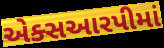
એક્સઆરપીમાં